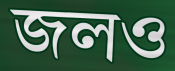
জলও